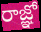
రాజ్ఞో